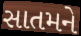
સાતમને